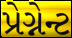
પ્રેગ્નેન્ટ